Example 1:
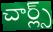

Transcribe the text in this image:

చార్ల్స్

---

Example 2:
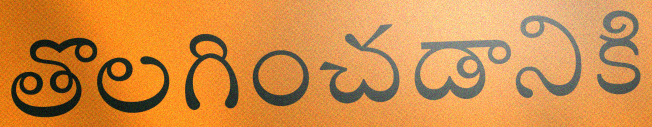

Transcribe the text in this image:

తొలగించడానికి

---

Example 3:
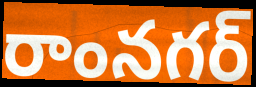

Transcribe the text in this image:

రాంనగర్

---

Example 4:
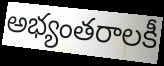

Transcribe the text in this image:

అభ్యంతరాలకీ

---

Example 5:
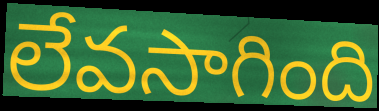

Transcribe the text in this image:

లేవసాగింది